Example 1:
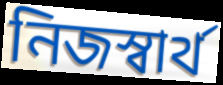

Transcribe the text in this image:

নিজস্বার্থ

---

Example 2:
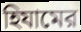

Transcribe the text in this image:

হিযামের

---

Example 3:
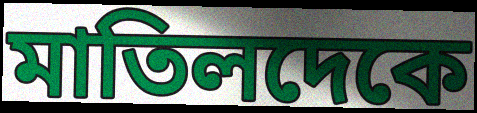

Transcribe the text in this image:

মাতিলদেকে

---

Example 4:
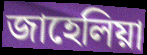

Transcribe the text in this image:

জাহেলিয়া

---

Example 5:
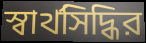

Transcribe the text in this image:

স্বার্থসিদ্ধির